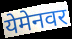
येमेनवर